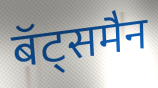
बॅट्समैन